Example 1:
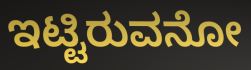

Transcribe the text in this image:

ಇಟ್ಟಿರುವನೋ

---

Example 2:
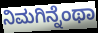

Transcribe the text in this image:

ನಿಮಗಿನ್ನೆಂಥಾ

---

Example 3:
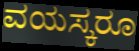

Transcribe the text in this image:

ವಯಸ್ಕರೂ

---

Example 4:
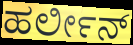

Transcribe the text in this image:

ಹರ್ಲೀನ್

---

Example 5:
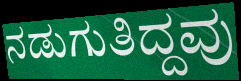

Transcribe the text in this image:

ನಡುಗುತಿದ್ದವು